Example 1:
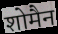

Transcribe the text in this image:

शोमैन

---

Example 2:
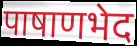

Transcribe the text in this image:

पाषाणभेद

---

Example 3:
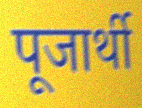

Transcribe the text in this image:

पूजार्थी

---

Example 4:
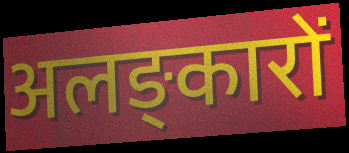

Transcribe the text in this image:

अलङ्कारों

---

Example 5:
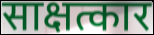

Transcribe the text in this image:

साक्षत्कार